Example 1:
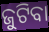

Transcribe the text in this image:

ଜୁଟିବା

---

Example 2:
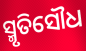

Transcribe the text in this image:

ସ୍ମୃତିସୌଧ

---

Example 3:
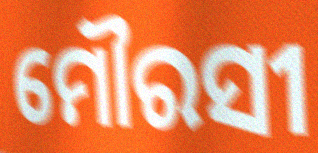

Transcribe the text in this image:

ମୌରସୀ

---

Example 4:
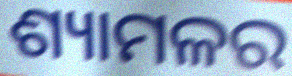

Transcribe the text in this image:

ଶ୍ୟାମଳର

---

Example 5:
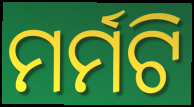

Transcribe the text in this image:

ମର୍ମଟି